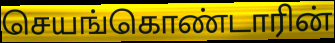
செயங்கொண்டாரின்